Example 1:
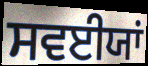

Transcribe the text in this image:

ਸਵਈਯਾਂ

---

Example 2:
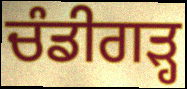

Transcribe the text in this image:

ਚੰਡੀਗਡ਼੍ਹ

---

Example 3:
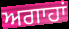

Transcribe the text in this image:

ਅਗਾਹਾਂ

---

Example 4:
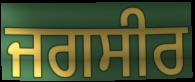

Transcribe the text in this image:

ਜਗਸੀਰ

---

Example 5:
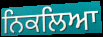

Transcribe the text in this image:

ਨਿਕਲਿਆ